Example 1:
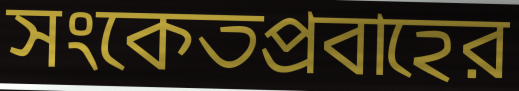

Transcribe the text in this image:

সংকেতপ্রবাহের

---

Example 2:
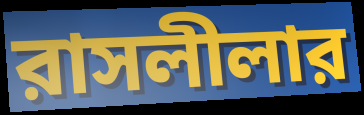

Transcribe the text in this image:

রাসলীলার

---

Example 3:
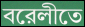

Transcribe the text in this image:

বরেলীতে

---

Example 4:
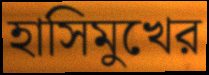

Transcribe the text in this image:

হাসিমুখের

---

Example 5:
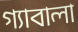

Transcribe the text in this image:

গ্যাবালা